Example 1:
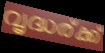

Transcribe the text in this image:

വൃദ്ധര്ക്ക്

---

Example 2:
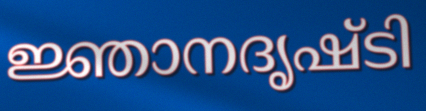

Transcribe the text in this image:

ജ്ഞാനദൃഷ്ടി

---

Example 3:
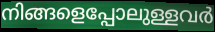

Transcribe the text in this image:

നിങ്ങളെപ്പോലുള്ളവർ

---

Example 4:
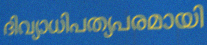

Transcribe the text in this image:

ദിവ്യാധിപത്യപരമായി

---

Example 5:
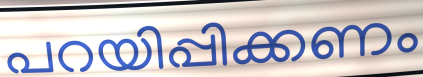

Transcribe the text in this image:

പറയിപ്പിക്കണം